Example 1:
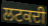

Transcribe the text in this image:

ਲਟਕਦੀ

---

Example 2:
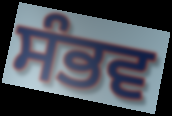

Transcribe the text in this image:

ਸੰਭਵ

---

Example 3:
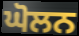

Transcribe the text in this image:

ਘੋਲਨ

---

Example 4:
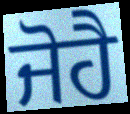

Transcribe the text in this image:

ਜੋਹੈ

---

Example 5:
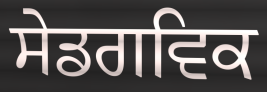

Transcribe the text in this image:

ਸੇਡਗਵਿਕ